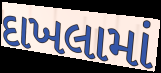
દાખલામાં